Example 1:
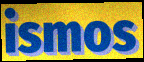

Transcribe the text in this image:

ismos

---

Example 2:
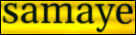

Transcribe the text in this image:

samaye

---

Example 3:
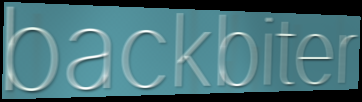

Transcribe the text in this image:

backbiter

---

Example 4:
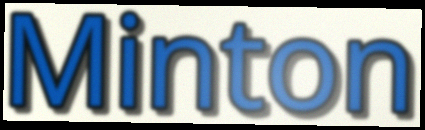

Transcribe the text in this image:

Minton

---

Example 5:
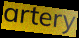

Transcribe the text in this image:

artery